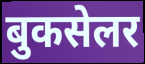
बुकसेलर